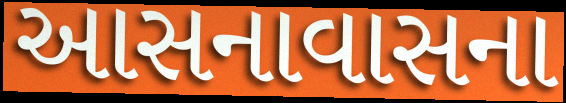
આસનાવાસના